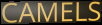
CAMELS